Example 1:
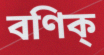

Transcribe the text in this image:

বণিক্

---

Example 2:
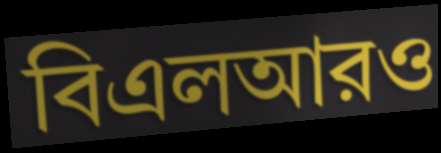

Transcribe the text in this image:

বিএলআরও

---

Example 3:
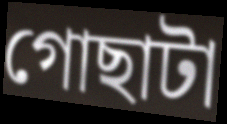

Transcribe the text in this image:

গোছাটা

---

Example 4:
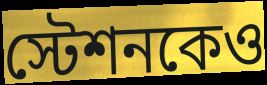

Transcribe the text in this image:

স্টেশনকেও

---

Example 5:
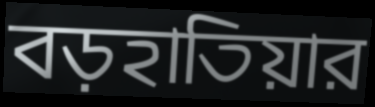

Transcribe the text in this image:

বড়হাতিয়ার